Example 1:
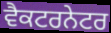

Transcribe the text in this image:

ਵੈਕਟਰਨੇਟਰ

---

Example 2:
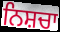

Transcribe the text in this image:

ਨਿਸ਼ਚਾ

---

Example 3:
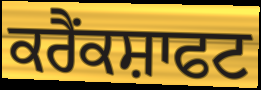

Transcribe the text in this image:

ਕਰੈਂਕਸ਼ਾਫਟ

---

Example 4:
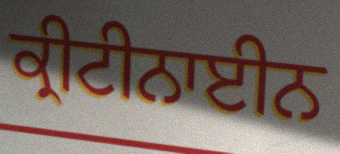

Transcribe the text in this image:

ਕ੍ਰੀਟੀਨਾਈਨ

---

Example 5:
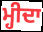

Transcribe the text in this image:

ਮ੍ਹੀਦਾ